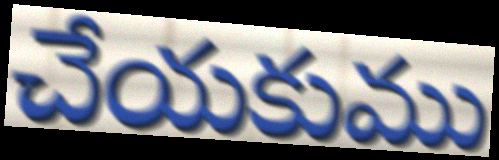
చేయకుము